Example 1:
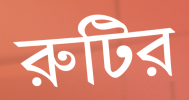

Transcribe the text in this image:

রুটির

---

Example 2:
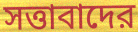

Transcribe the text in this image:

সত্তাবাদের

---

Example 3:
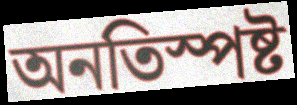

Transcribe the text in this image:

অনতিস্পষ্ট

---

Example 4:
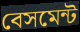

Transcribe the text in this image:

বেসমেন্ট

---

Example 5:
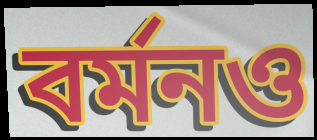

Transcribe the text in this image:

বর্মনও